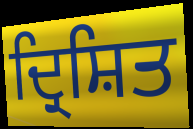
ਦ੍ਰਿਸ਼ਿਤ